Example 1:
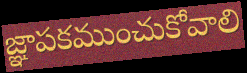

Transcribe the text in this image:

జ్ఞాపకముంచుకోవాలి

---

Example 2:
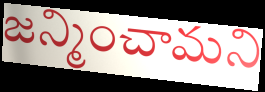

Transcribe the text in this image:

జన్మించామని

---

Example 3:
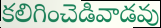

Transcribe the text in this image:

కలిగించెడివాడవు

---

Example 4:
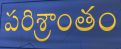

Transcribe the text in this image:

పరిశ్రాంతం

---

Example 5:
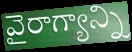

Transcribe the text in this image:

వైరాగ్యాన్ని